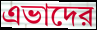
এভাদের